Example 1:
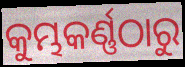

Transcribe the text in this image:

କୁମ୍ଭକର୍ଣ୍ଣଠାରୁ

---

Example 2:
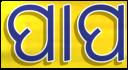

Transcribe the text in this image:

ପାପ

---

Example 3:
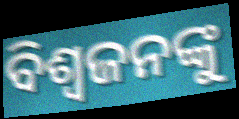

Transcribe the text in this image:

ବିଶ୍ୱଜନଙ୍କୁ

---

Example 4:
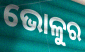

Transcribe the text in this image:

ଭୋଳୁର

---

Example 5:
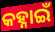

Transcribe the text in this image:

କହ୍ନାଇଁ